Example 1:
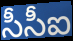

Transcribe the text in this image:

సీసీఐ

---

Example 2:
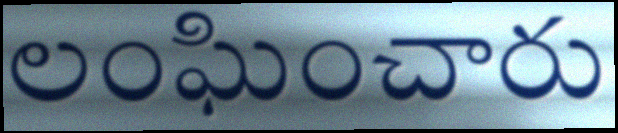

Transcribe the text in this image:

లంఘించారు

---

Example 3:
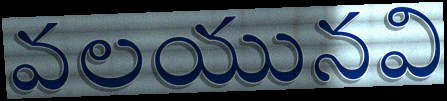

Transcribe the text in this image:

వలయునవి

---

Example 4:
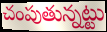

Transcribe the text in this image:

చంపుతున్నట్టు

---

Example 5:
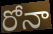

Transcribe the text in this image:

రోనా